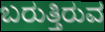
ಬರುತ್ತಿರುವ